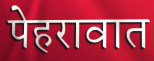
पेहरावात